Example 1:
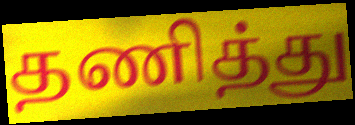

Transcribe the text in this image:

தணித்து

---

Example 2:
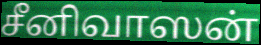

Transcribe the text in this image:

சீனிவாஸன்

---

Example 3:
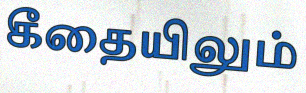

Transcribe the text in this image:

கீதையிலும்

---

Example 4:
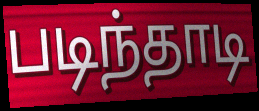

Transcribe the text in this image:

படிந்தாடி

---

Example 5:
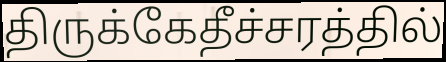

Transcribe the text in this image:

திருக்கேதீச்சரத்தில்